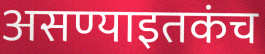
असण्याइतकंच